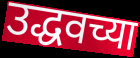
उद्धवच्या